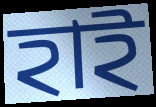
হাই